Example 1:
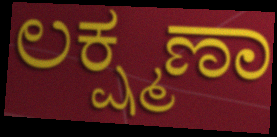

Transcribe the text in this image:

ಲಕ್ಷ್ಮಣಾ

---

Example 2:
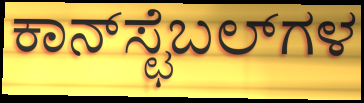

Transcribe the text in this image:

ಕಾನ್‌ಸ್ಟೆಬಲ್‌ಗಳ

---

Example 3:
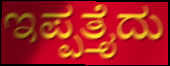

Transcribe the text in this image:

ಇಪ್ಪತ್ತೈದು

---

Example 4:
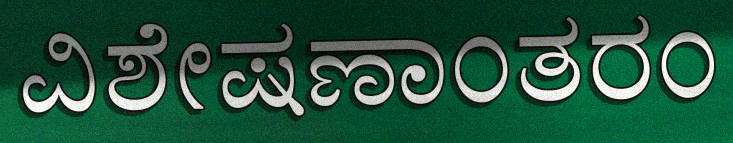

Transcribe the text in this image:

ವಿಶೇಷಣಾಂತರಂ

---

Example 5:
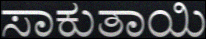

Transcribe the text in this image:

ಸಾಕುತಾಯಿ